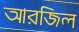
আরজিল